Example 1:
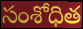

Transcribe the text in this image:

సంశోధిత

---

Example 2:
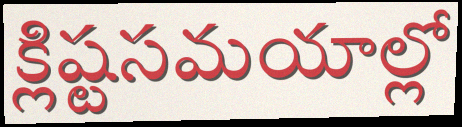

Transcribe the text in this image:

క్లిష్టసమయాల్లో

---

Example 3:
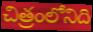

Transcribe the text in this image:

చిత్రంలోనిది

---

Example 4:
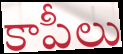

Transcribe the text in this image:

కాపీలు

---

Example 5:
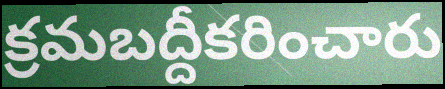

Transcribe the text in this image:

క్రమబద్దీకరించారు